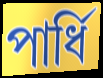
পাৰ্ধি